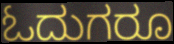
ಓದುಗರೂ